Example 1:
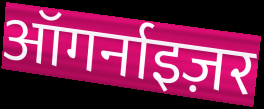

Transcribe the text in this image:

ऑगर्नाइज़र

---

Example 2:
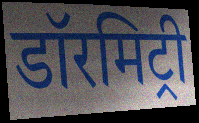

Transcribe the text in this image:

डॉरमिट्री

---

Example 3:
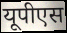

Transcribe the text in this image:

यूपीएस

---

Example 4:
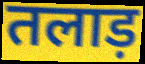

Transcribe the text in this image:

तलाड़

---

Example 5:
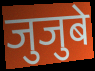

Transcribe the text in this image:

जुजुबे